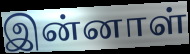
இன்னாள்